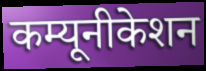
कम्यूनीकेशन